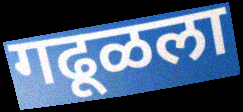
गढूळला